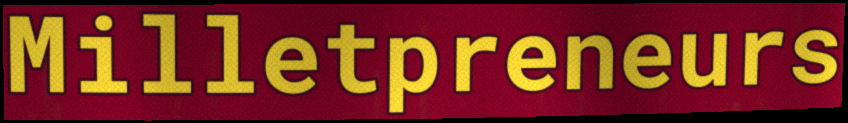
Milletpreneurs